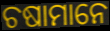
ଚଷାମାନେ